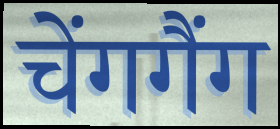
चेंगगैंग